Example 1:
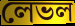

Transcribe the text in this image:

লেভল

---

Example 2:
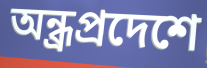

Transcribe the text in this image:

অন্ধ্রপ্রদেশে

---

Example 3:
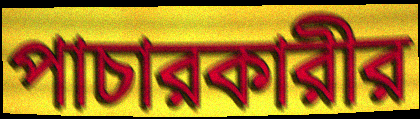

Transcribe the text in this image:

পাচারকারীর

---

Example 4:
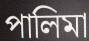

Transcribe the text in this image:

পালিমা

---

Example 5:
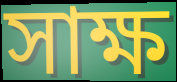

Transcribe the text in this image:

সাক্ষ